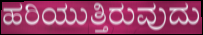
ಹರಿಯುತ್ತಿರುವುದು